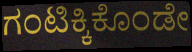
ಗಂಟಿಕ್ಕಿಕೊಂಡೇ